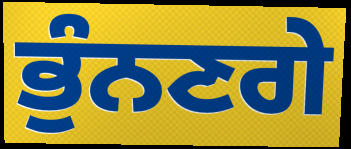
ਭੁੰਨਣਗੇ